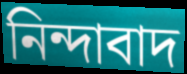
নিন্দাবাদ